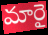
మారై